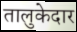
तालुकेदार